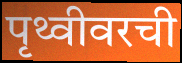
पृथ्वीवरची